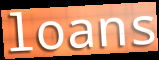
loans